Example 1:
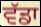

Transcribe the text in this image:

ਵੱਡਾ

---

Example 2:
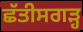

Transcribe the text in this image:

ਛੱਤੀਸਗੜ੍ਹ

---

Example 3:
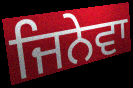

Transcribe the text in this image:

ਜਿਨੇਵਾ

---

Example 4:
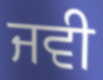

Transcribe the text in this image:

ਜਵੀ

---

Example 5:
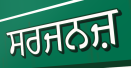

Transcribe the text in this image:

ਸਰਜਨਜ਼